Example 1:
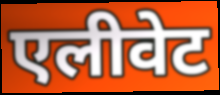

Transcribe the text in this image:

एलीवेट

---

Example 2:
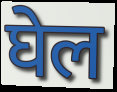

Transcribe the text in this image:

घेल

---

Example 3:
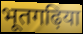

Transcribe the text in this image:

भूतगढ़िया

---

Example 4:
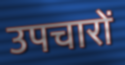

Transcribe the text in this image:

उपचारों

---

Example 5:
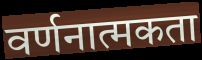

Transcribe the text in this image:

वर्णनात्मकता